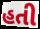
હતી